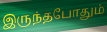
இருந்தபோதும்